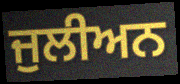
ਜੁਲੀਅਨ